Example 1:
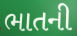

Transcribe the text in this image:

ભાતની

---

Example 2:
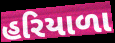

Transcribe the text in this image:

હરિયાળા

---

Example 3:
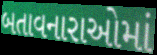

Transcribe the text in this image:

બતાવનારાઓમાં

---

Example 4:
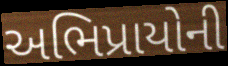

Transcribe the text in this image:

અભિપ્રાયોની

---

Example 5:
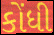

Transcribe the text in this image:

કોંધી